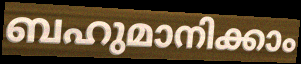
ബഹുമാനിക്കാം